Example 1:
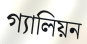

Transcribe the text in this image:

গ্যালিয়ন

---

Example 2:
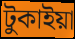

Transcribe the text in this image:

টুকাইয়া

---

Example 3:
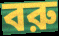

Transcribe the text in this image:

বরু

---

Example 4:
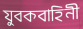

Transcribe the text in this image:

যুবকবাহিনী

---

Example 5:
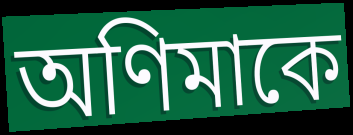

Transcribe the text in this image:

অণিমাকে